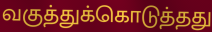
வகுத்துக்கொடுத்தது